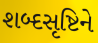
શબ્દસૃષ્ટિને